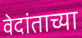
वेदांताच्या